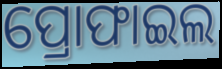
ପ୍ରୋଫାଇଲ